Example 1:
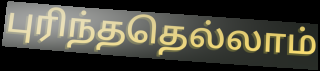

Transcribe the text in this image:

புரிந்ததெல்லாம்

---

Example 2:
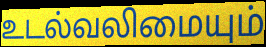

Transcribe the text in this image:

உடல்வலிமையும்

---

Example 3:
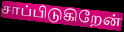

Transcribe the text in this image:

சாப்பிடுகிறேன்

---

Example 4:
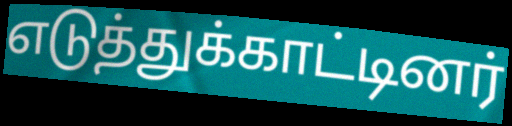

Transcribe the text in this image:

எடுத்துக்காட்டினர்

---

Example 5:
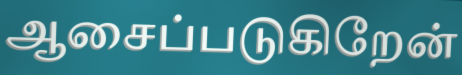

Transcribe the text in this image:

ஆசைப்படுகிறேன்